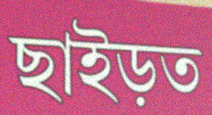
ছাইড়ত